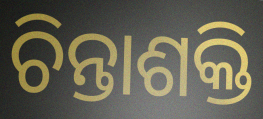
ଚିନ୍ତାଶକ୍ତି